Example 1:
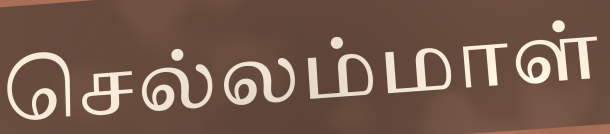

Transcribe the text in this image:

செல்லம்மாள்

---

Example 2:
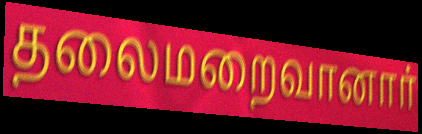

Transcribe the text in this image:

தலைமறைவானார்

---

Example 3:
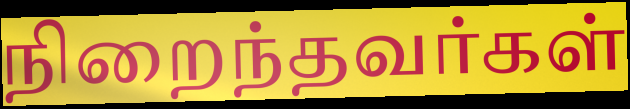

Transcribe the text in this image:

நிறைந்தவர்கள்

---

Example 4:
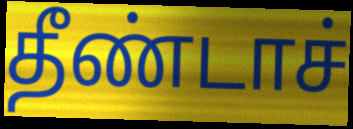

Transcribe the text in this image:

தீண்டாச்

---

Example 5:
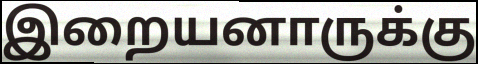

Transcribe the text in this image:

இறையனாருக்கு